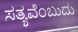
ಸತ್ಯವೆಂಬುದು